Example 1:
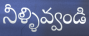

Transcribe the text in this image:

నీళ్ళివ్వండి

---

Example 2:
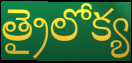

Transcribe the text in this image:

త్రైలోక్య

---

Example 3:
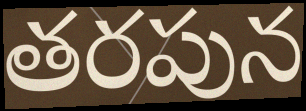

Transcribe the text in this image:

తరపున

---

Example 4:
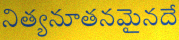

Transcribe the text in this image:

నిత్యనూతనమైనదే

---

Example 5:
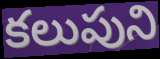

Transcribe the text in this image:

కలుపుని